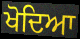
ਖੋਦਿਆ